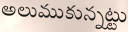
అలుముకున్నట్టు